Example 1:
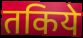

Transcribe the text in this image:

तकिये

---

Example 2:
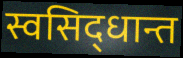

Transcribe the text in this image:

स्वसिद्धान्त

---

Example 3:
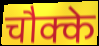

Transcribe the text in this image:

चौक्के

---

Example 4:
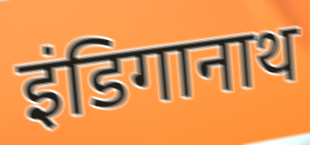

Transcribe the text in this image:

इंडिगानाथ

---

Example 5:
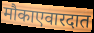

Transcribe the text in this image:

मौकाएवारदात